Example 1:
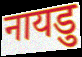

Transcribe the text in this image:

नायडु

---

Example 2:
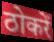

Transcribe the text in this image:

ठोकरें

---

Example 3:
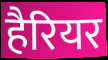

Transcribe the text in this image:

हैरियर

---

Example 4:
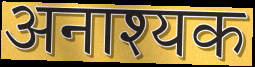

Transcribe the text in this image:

अनाश्यक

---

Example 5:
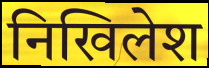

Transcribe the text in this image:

निखिलेश